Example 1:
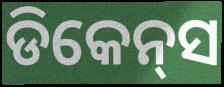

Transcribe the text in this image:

ଡିକେନ୍‌ସ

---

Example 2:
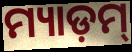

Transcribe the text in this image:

ମ୍ୟାଡ଼ମ୍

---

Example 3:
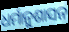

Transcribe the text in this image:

ଧର୍ମାନୁଶାସନ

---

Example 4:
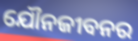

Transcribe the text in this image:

ଯୌନଜୀବନର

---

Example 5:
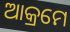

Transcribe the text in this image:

ଆକ୍ରମେ